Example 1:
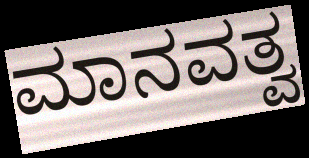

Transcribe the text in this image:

ಮಾನವತ್ವ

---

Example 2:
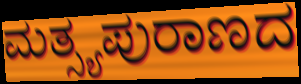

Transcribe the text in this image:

ಮತ್ಸ್ಯಪುರಾಣದ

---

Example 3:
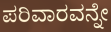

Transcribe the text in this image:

ಪರಿವಾರವನ್ನೇ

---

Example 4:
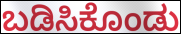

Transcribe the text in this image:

ಬಡಿಸಿಕೊಂಡು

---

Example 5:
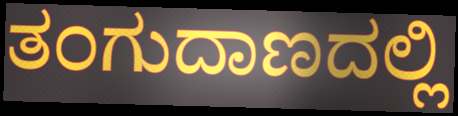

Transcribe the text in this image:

ತಂಗುದಾಣದಲ್ಲಿ